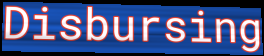
Disbursing